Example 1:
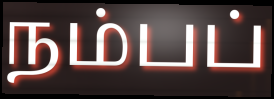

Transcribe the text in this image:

நம்பப்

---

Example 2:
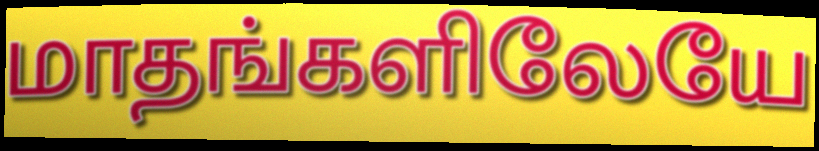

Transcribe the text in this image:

மாதங்களிலேயே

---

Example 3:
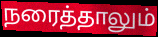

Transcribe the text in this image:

நரைத்தாலும்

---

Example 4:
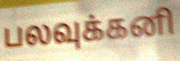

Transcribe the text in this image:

பலவுக்கனி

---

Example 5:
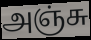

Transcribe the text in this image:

அஞ்சு